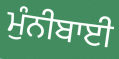
ਮੁੰਨੀਬਾਈ